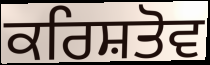
ਕਰਿਸ਼ਤੋਵ